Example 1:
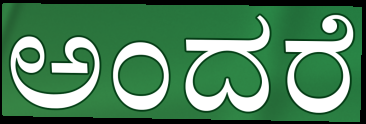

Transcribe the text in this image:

ಅಂದರೆ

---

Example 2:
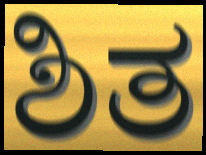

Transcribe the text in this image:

ಶಿತ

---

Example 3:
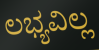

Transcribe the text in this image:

ಲಭ್ಯವಿಲ್ಲ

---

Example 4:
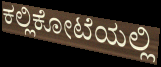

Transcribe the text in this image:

ಕಲ್ಲಿಕೋಟೆಯಲ್ಲಿ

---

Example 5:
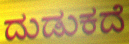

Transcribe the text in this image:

ದುಡುಕದೆ